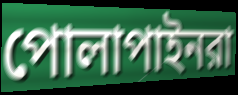
পোলাপাইনরা